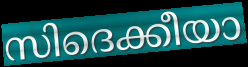
സിദെക്കീയാ